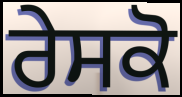
ਰੇਸਕੋ